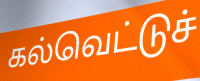
கல்வெட்டுச்